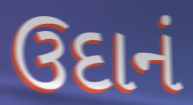
ઉદાનં